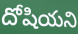
దోషియని